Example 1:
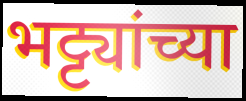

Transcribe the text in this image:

भट्ट्यांच्या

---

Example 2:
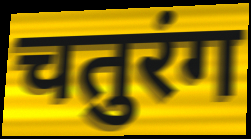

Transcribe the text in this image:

चतुरंग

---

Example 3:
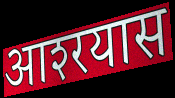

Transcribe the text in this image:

आश्रयास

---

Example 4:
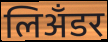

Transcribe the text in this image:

लिअँडर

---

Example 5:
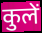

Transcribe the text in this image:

कुलें